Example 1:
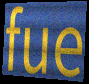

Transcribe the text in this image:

fue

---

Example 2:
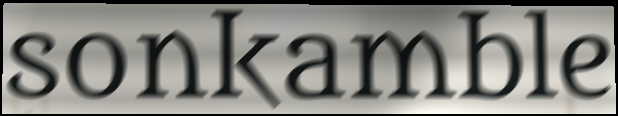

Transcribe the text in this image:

sonkamble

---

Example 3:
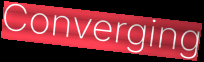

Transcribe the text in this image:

Converging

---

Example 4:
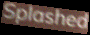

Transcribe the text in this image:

Splashed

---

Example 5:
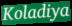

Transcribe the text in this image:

Koladiya